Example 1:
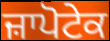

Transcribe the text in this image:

ਜ਼ਾਪੋਟੇਕ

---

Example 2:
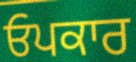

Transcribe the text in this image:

ਓਪਕਾਰ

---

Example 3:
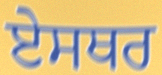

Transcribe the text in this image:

ਏਸਥਰ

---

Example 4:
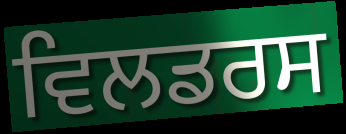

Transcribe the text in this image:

ਵਿਲਡਰਸ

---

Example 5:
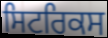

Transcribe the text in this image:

ਸਿਟਰਿਕਸ